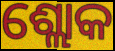
ଶ୍ଲୋକ